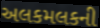
અલકમલકની